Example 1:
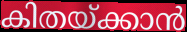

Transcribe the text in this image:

കിതയ്ക്കാൻ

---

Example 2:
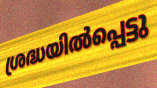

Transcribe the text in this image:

ശ്രദ്ധയിൽപ്പെട്ടു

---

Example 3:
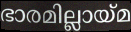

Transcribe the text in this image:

ഭാരമില്ലായ്മ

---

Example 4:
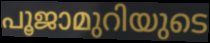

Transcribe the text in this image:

പൂജാമുറിയുടെ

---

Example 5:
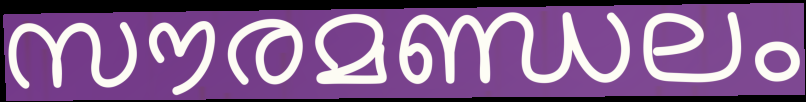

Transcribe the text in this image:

സൗരമണ്ഡലം